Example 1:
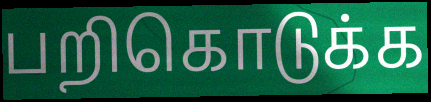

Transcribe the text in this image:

பறிகொடுக்க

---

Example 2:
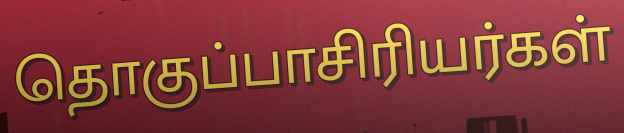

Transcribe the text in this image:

தொகுப்பாசிரியர்கள்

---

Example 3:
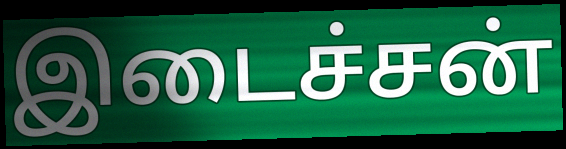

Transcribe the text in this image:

இடைச்சன்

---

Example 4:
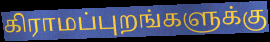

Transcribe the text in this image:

கிராமப்புறங்களுக்கு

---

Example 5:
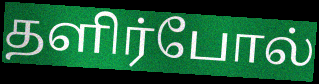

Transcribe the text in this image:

தளிர்போல்